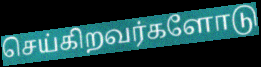
செய்கிறவர்களோடு